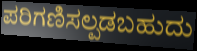
ಪರಿಗಣಿಸಲ್ಪಡಬಹುದು